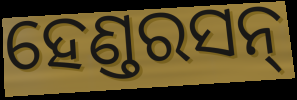
ହେଣ୍ଡରସନ୍